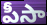
పీసా